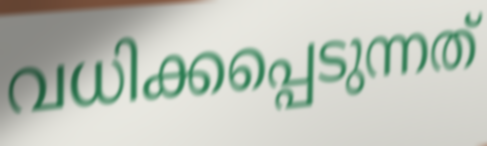
വധിക്കപ്പെടുന്നത്